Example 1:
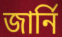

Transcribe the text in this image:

জার্নি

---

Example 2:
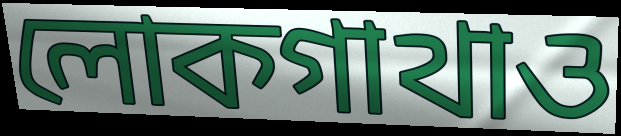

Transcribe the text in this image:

লোকগাথাও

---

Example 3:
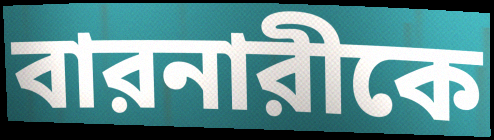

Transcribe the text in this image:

বারনারীকে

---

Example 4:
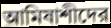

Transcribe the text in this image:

আমিষাশীদের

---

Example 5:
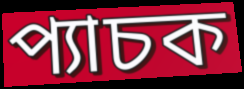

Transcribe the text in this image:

প্যাচক